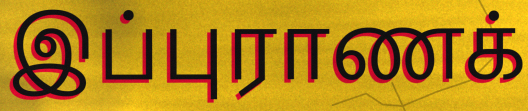
இப்புராணக்